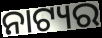
ନାଟ୍ୟର